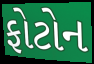
ફોટોન